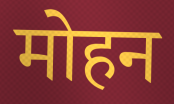
मोहन